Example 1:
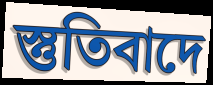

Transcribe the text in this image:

স্তুতিবাদে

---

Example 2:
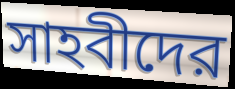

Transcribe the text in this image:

সাহবীদের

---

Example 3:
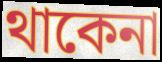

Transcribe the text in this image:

থাকেনা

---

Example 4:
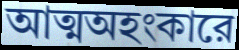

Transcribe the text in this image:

আত্মঅহংকারে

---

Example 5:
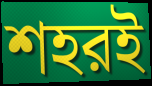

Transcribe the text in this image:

শহরই